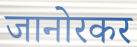
जानोरकर